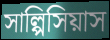
সাল্পিসিয়াস